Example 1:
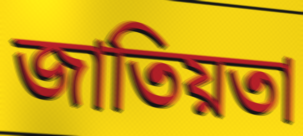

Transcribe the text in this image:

জাতিয়তা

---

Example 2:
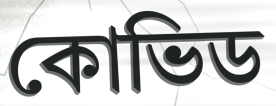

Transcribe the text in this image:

কোভিড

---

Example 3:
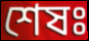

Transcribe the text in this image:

শেষঃ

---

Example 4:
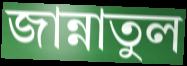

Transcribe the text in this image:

জান্নাতুল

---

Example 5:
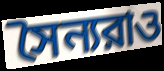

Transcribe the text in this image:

সৈন্যরাও